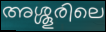
അശ്ശൂരിലെ